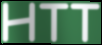
HTT